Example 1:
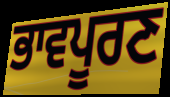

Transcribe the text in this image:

ਭਾਵਪੂਰਣ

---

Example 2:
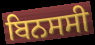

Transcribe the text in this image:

ਬਿਨਸਸੀ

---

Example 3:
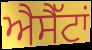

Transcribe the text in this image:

ਐਸੈੱਟਾਂ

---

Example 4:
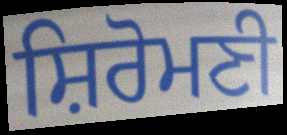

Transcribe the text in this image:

ਸ਼ਿਰੋਮਣੀ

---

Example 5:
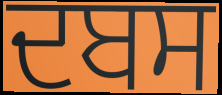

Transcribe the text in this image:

ਦਬਸ